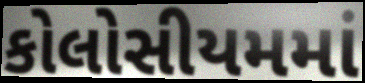
કોલોસીયમમાં